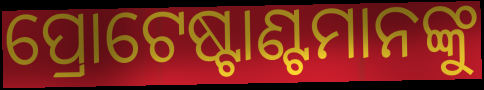
ପ୍ରୋଟେଷ୍ଟାଣ୍ଟମାନଙ୍କୁ